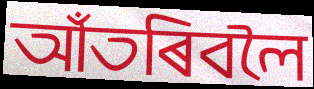
আঁতৰিবলৈ